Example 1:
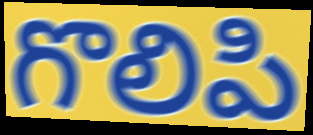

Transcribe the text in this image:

గొలిపి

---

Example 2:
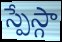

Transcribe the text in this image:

స్పేస్గా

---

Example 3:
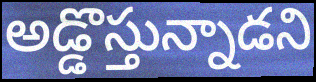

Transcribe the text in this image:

అడ్డొస్తున్నాడని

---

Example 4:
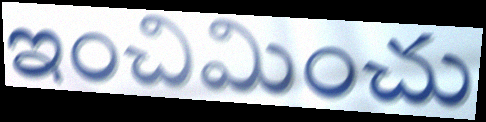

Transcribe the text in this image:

ఇంచిమించు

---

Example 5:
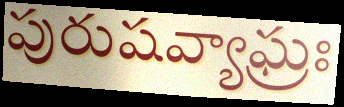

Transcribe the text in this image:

పురుషవ్యాఘ్రః